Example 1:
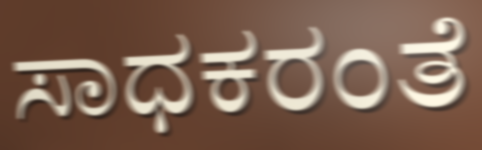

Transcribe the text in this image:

ಸಾಧಕರಂತೆ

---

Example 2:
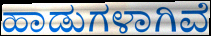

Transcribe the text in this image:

ಹಾಡುಗಳಾಗಿವೆ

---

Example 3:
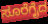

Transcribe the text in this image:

ಸೂರೆಗೈದ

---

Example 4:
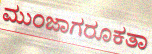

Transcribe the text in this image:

ಮುಂಜಾಗರೂಕತಾ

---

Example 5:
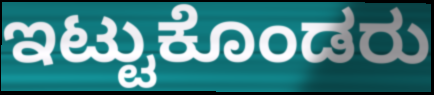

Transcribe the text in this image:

ಇಟ್ಟುಕೊಂಡರು